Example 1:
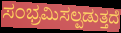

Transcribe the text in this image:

ಸಂಭ್ರಮಿಸಲ್ಪಡುತ್ತದೆ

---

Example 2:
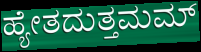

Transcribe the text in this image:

ಹ್ಯೇತದುತ್ತಮಮ್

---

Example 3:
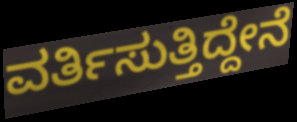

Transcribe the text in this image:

ವರ್ತಿಸುತ್ತಿದ್ದೇನೆ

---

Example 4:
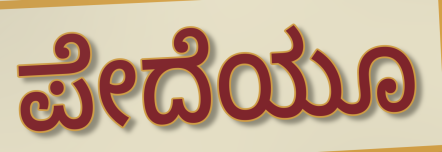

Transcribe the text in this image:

ಪೇದೆಯೂ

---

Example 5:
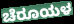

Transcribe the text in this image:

ಚೆರೂಯಳ